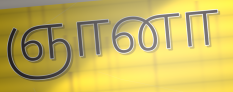
ஞானா